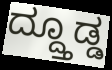
ದ್ದ್ತೂಡ್ಡ